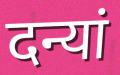
दन्यां